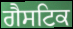
ਗੈਸਟਿਕ